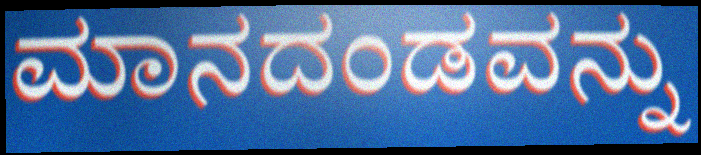
ಮಾನದಂಡವನ್ನು